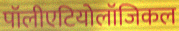
पॉलीएटियोलॉजिकल